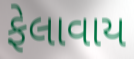
ફેલાવાય